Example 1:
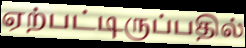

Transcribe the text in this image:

ஏற்பட்டிருப்பதில்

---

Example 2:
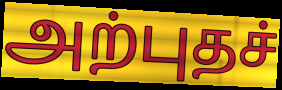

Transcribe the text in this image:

அற்புதச்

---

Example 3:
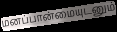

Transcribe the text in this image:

மனப்பான்மையுடனும்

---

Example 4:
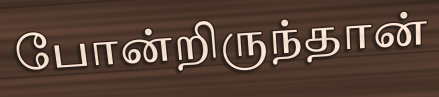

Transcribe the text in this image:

போன்றிருந்தான்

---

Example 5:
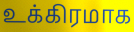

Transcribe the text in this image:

உக்கிரமாக